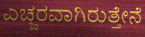
ಎಚ್ಚರವಾಗಿರುತ್ತೇನೆ